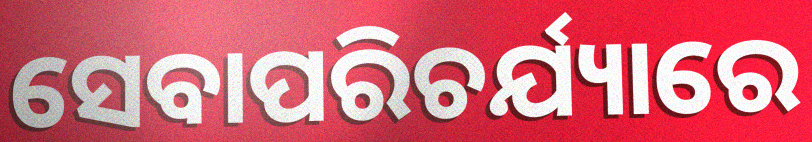
ସେବାପରିଚର୍ଯ୍ୟାରେ